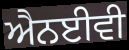
ਐਨਈਵੀ